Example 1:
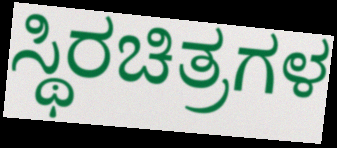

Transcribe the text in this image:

ಸ್ಥಿರಚಿತ್ರಗಳ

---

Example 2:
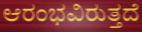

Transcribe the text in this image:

ಆರಂಭವಿರುತ್ತದೆ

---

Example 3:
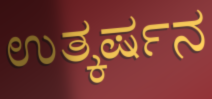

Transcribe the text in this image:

ಉತ್ಕರ್ಷನ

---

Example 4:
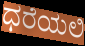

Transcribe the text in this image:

ಧರೆಯಲಿ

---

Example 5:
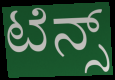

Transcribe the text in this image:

ಟೆನ್ಸ್